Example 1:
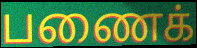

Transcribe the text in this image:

பணைக்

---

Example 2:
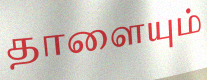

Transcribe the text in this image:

தாளையும்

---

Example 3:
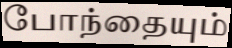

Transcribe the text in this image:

போந்தையும்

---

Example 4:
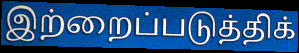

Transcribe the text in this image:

இற்றைப்படுத்திக்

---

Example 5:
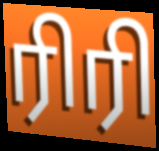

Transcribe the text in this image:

ரிரி